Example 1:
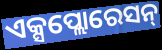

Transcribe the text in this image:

ଏକ୍ସପ୍ଲୋରେସନ୍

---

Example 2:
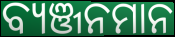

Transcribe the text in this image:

ବ୍ୟଞ୍ଜନମାନ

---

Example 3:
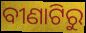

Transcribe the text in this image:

ବୀଣାଟିରୁ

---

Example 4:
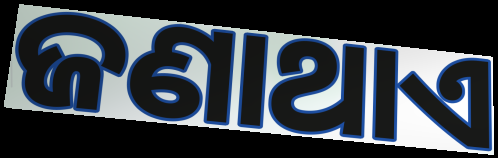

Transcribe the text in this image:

ଜଣାଥାଏ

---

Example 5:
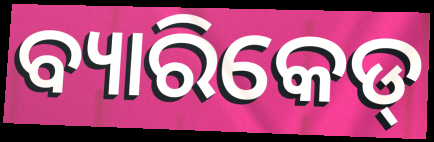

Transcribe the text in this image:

ବ୍ୟାରିକେଡ୍